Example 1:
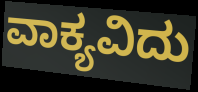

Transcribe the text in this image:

ವಾಕ್ಯವಿದು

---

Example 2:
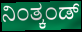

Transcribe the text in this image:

ನಿಂತ್ಕಂಡ್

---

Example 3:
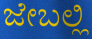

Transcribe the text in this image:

ಜೇಬಲ್ಲಿ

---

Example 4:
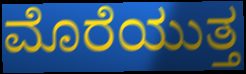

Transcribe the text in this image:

ಮೊರೆಯುತ್ತ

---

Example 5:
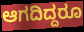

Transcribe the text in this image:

ಆಗದಿದ್ದರೂ